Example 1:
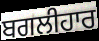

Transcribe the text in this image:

ਬਗਲੀਹਾਰ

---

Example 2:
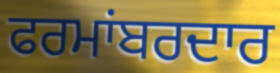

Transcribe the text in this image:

ਫਰਮਾਂਬਰਦਾਰ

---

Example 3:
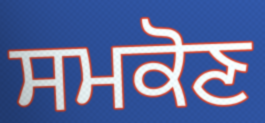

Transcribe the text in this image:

ਸਮਕੋਣ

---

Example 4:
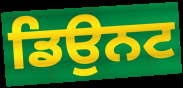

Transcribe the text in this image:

ਡਿਉਨਟ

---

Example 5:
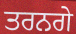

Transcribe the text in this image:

ਤਰਨਗੇ